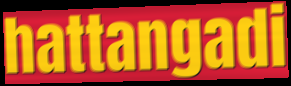
hattangadi